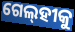
ଗେଲ୍‌ହୀକୁ